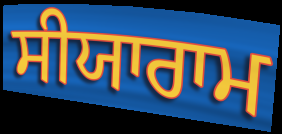
ਸੀਯਾਰਾਮ